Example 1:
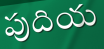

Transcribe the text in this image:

పుదియ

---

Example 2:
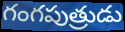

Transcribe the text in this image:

గంగపుత్రుడు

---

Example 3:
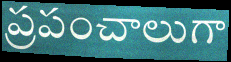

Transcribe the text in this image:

ప్రపంచాలుగా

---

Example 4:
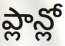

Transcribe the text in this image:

ప్లాన్లో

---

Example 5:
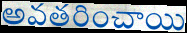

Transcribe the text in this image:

అవతరించాయి